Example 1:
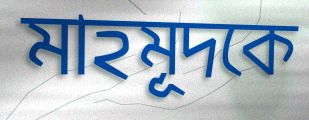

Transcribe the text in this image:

মাহমূদকে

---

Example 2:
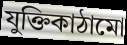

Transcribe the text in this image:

যুক্তিকাঠামো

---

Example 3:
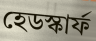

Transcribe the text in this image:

হেডস্কার্ফ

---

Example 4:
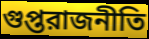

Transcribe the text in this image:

গুপ্তরাজনীতি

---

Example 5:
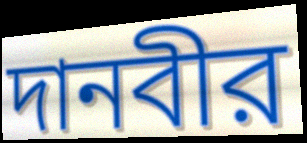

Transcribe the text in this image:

দানবীর